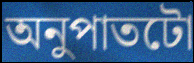
অনুপাতটো